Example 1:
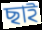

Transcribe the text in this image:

ছাই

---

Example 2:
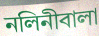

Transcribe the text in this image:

নলিনীবালা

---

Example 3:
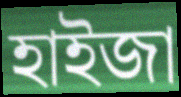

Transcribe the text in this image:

হাইজা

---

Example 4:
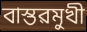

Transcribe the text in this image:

বাস্তৱমুখী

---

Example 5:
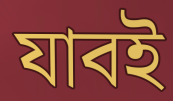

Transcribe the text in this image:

যাবই